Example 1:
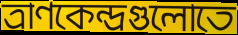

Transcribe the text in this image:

ত্রাণকেন্দ্রগুলোতে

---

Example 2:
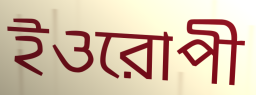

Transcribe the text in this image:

ইওরোপী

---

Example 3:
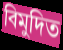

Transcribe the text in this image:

বিমুদিত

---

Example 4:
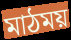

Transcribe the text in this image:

মাঠময়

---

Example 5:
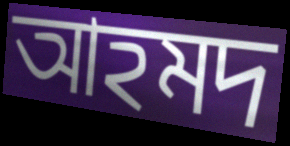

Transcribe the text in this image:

আহমদ